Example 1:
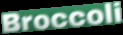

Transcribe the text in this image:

Broccoli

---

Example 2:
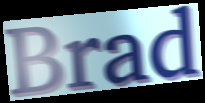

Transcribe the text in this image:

Brad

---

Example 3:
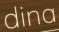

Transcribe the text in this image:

dina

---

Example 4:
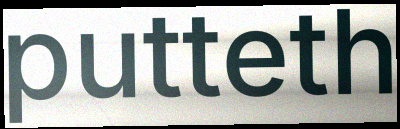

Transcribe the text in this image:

putteth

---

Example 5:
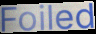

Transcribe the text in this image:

Foiled